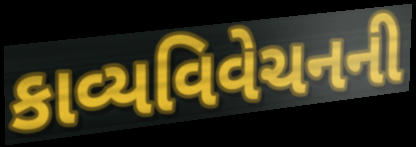
કાવ્યવિવેચનની